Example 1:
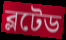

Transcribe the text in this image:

ব্লটেড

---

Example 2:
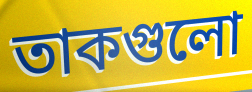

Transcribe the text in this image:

তাকগুলো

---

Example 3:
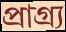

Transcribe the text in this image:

প্রাগ্র্য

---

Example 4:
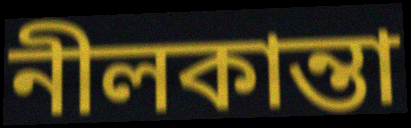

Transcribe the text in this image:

নীলকান্তা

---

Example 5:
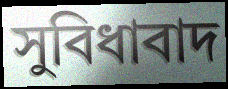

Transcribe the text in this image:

সুবিধাবাদ